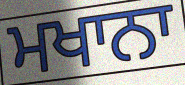
ਮਖਾਨਾ